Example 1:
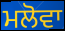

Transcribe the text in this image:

ਮਲੋਵਾ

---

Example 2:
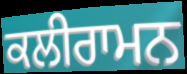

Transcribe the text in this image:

ਕਲੀਰਾਮਨ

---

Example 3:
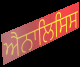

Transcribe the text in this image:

ਐਨਾਲਿਸਿਸ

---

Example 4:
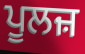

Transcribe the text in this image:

ਪੂਲਜ਼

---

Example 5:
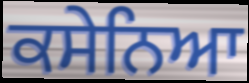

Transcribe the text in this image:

ਕਸੇਨਿਆ